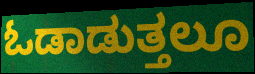
ಓಡಾಡುತ್ತಲೂ